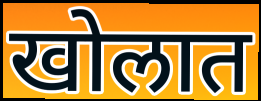
खोलात